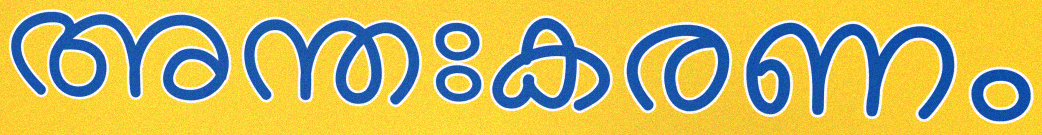
അന്തഃകരണം